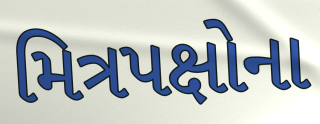
મિત્રપક્ષોના